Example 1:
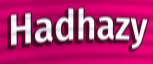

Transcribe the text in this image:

Hadhazy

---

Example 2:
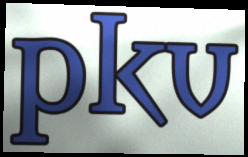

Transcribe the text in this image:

pku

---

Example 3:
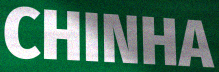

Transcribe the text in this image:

CHINHA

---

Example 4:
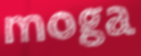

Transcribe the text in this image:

moga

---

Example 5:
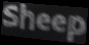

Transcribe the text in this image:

Sheep